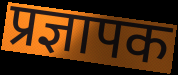
प्रज्ञापक